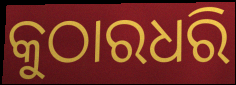
କୁଠାରଧରି